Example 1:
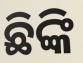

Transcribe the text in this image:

ଛିଙ୍କି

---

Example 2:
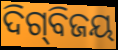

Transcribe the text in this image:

ଦିଗ୍‍ବିଜୟ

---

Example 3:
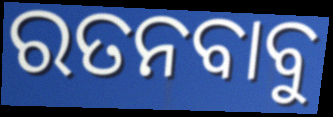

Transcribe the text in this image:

ରତନବାବୁ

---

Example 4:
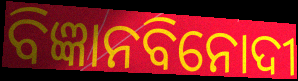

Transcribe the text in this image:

ବିଜ୍ଞାନବିନୋଦୀ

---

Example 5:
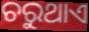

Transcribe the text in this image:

ଚରୁଥାଏ